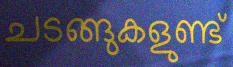
ചടങ്ങുകളുണ്ട്